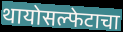
थायोसल्फेटाचा